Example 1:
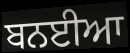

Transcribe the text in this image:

ਬਨਈਆ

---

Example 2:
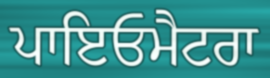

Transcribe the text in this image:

ਪਾਇਓਮੈਟਰਾ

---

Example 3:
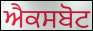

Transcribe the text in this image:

ਐਕਸਬੋਟ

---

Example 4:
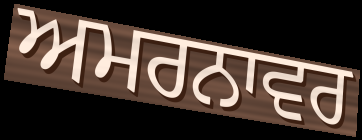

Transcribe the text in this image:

ਅਮਰਨਾਵਰ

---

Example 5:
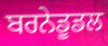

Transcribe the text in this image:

ਬਰਨੇਡੂਡਲ